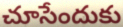
చూసేందుకు